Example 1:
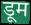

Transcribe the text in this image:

डूम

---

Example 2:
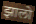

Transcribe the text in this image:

झालो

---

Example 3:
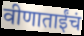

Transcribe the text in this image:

वीणाताईंचं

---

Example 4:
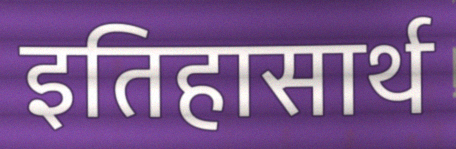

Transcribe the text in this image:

इतिहासार्थ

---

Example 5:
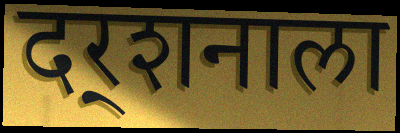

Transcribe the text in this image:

दर्शनाला